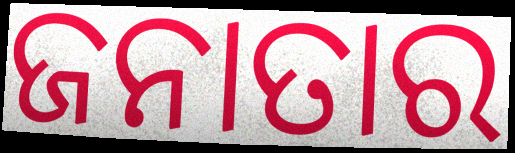
ଜନାତାର